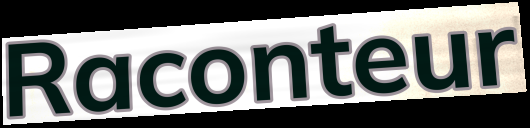
Raconteur